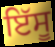
ਇੱਸੂ